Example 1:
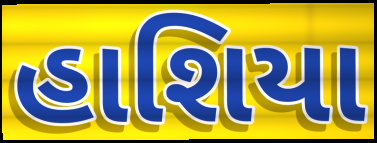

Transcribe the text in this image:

હાશિયા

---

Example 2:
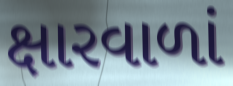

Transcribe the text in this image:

ક્ષારવાળાં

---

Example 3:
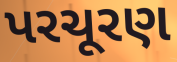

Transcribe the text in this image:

પરચૂરણ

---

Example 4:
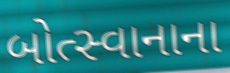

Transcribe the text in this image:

બોત્સ્વાનાના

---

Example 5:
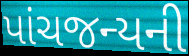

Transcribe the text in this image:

પાંચજન્યની